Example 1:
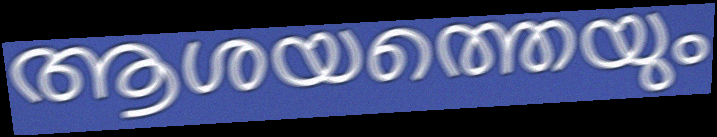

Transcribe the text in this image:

ആശയത്തെയും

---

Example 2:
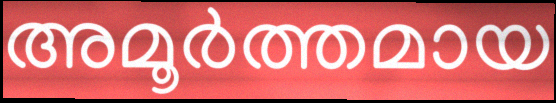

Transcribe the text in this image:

അമൂർത്തമായ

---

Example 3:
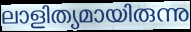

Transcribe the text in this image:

ലാളിത്യമായിരുന്നു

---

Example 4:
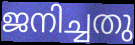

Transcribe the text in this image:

ജനിച്ചതു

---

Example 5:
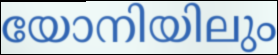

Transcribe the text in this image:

യോനിയിലും